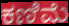
ಕಣಿಮೆ